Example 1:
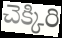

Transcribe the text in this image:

చెక్కిరి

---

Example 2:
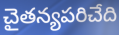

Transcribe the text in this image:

చైతన్యపరిచేది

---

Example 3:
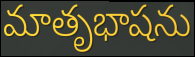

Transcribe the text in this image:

మాతృభాషను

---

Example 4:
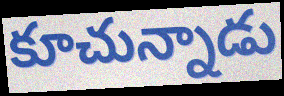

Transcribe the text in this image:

కూచున్నాడు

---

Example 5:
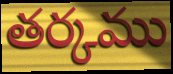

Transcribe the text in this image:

తర్కము